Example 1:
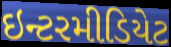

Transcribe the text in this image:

ઇન્ટરમીડિયેટ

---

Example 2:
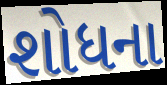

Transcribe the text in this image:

શોધના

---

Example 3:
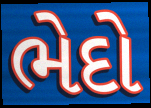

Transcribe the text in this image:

ભેદો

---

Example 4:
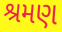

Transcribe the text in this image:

શ્રમણ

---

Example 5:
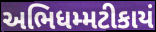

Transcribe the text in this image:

અભિધમ્મટીકાયં